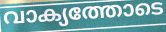
വാക്യത്തോടെ